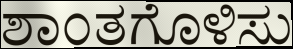
ಶಾಂತಗೊಳಿಸು